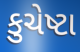
કુચેષ્ટા